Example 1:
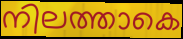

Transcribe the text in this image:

നിലത്താകെ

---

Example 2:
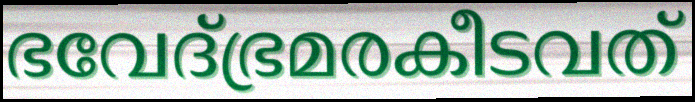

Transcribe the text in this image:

ഭവേദ്ഭ്രമരകീടവത്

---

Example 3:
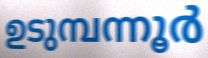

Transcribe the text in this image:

ഉടുമ്പന്നൂർ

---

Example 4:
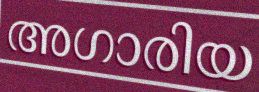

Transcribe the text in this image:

അഗാരിയ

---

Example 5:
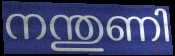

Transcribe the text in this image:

നന്തുണി